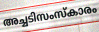
അച്ചടിസംസ്കാരം